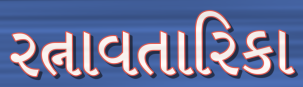
રત્નાવતારિકા